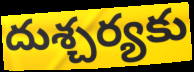
దుశ్చర్యకు